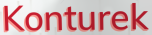
Konturek